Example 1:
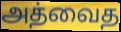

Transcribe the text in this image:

அத்வைத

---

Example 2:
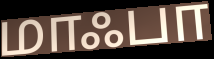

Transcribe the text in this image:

மாஃபா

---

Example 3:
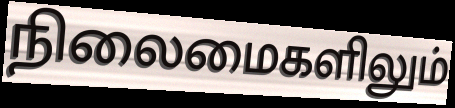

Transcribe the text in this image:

நிலைமைகளிலும்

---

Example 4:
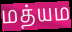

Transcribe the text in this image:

மத்யம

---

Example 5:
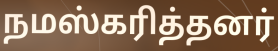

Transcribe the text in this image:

நமஸ்கரித்தனர்